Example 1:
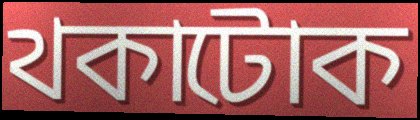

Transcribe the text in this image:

থকাটোক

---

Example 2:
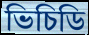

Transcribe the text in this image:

ভিচিডি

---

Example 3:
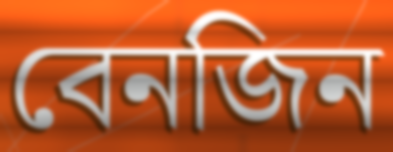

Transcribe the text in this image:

বেনজিন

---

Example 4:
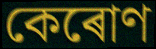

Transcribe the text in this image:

কেৰোণ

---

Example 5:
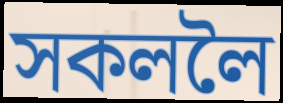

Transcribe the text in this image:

সকললৈ